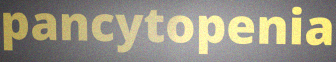
pancytopenia